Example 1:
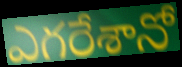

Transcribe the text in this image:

ఎగరేశానో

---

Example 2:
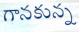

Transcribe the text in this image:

గానకున్న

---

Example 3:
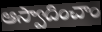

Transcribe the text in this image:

ఆస్వాదించాం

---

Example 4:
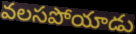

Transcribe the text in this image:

వలసపోయాడు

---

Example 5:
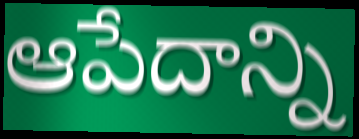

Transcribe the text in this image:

ఆపేదాన్ని